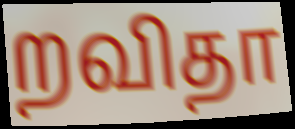
றவிதா